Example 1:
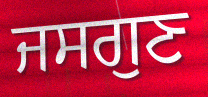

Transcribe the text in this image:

ਜਸਗੁਣ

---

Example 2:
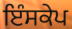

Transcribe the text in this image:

ਇੰਸਕੇਪ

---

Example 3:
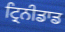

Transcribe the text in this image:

ਟ੍ਰਿਨੀਡਾਡ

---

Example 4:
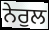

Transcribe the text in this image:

ਨੇਰੁਲ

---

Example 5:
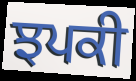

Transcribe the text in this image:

ਝਪਕੀ